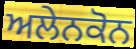
ਅਲੇਨਕੋਨ